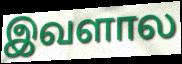
இவளால